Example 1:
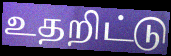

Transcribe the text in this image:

உதறிட்டு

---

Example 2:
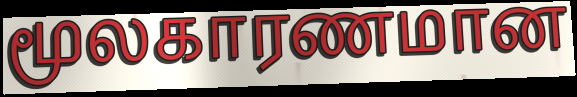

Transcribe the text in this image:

மூலகாரணமான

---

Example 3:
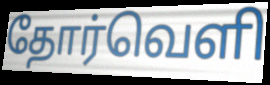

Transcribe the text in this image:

தோர்வெளி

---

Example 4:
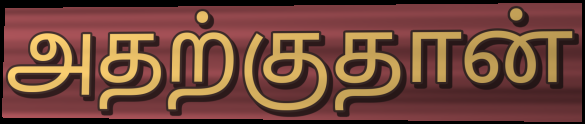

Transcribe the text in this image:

அதற்குதான்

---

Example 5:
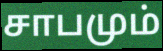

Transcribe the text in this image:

சாபமும்